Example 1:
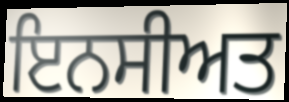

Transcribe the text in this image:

ਇਨਸੀਅਤ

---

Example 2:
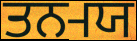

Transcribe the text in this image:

ਤਨ੍ਮਯ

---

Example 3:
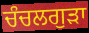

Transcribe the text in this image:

ਚੰਚਲਗੁੜਾ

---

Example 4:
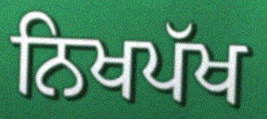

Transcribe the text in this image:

ਨਿਖਪੱਖ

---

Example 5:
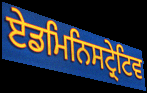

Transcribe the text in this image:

ਏਡਮਿਨਿਸਟ੍ਰੇਟਿਵ